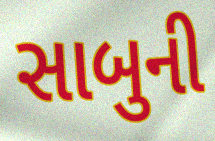
સાબુની